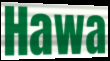
Hawa